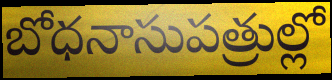
బోధనాసుపత్రుల్లో